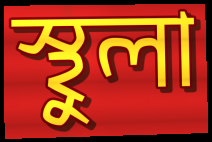
স্থুলা